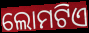
ଲୋମଟିଏ